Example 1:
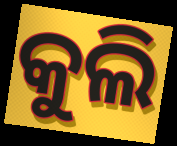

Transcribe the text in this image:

କୁଲି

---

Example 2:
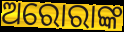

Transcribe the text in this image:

ଅରୋରାଙ୍କ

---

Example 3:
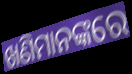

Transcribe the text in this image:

ଖଣିମାନଙ୍କରେ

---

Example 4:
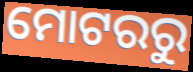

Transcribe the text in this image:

ମୋଟରରୁ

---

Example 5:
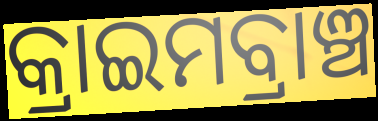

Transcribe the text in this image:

କ୍ରାଇମବ୍ରାଞ୍ଚ